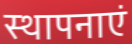
स्थापनाएं